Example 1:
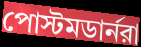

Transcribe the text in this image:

পোস্টমডার্নরা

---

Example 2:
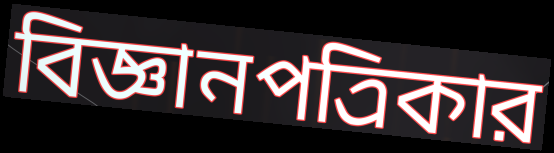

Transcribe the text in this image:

বিজ্ঞানপত্রিকার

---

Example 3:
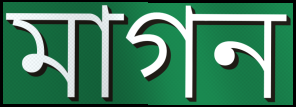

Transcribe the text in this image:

মাগন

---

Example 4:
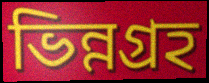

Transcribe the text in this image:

ভিন্নগ্রহ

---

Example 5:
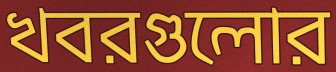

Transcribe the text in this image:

খবরগুলোর